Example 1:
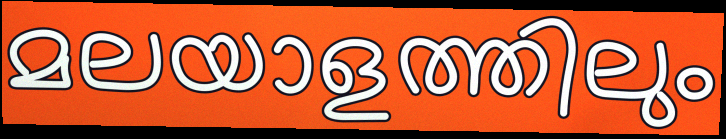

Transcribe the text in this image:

മലയാളത്തിലും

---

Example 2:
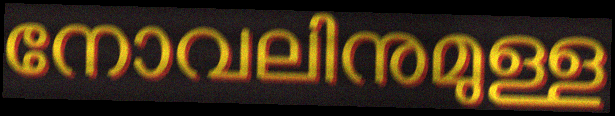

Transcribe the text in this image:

നോവലിനുമുള്ള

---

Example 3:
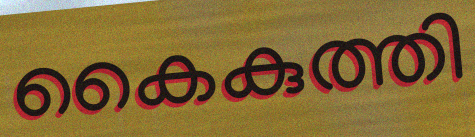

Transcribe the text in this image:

കൈകുത്തി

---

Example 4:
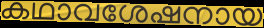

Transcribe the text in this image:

കഥാവശേഷനായ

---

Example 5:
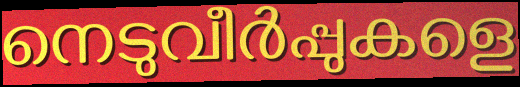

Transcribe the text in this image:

നെടുവീർപ്പുകളെ